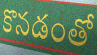
కొనడంతో